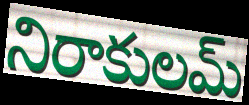
నిరాకులమ్